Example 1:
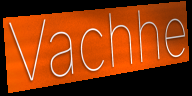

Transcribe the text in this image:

Vachhe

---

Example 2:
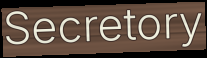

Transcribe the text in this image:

Secretory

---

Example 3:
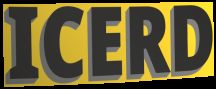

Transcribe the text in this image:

ICERD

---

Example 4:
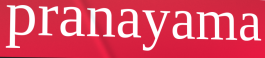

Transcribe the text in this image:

pranayama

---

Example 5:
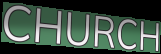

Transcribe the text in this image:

CHURCH